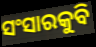
ସଂସାରକୁବି